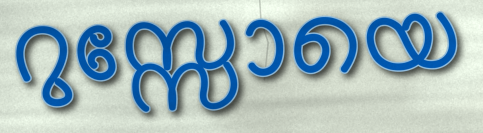
റുസ്സോയെ